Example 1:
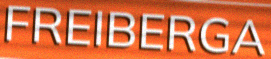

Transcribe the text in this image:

FREIBERGA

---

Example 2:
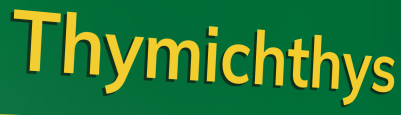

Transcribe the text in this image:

Thymichthys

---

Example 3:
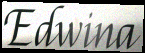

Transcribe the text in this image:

Edwina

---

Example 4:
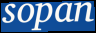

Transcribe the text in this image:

sopan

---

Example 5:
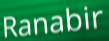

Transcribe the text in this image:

Ranabir